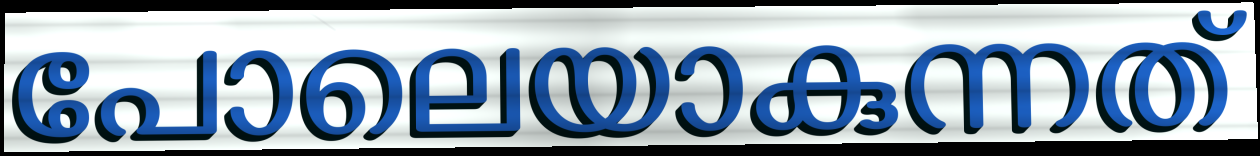
പോലെയാകുന്നത്